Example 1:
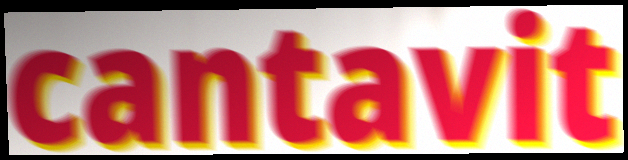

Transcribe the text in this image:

cantavit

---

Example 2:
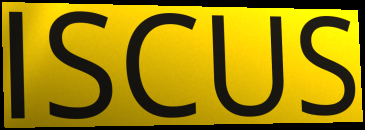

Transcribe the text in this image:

ISCUS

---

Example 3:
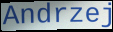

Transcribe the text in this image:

Andrzej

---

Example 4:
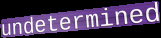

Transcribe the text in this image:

undetermined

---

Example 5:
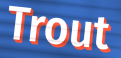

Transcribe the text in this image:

Trout